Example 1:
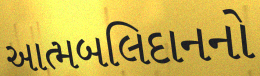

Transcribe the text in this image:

આત્મબલિદાનનો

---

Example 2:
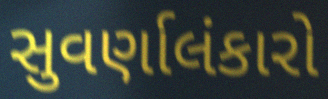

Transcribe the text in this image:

સુવર્ણાલંકારો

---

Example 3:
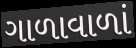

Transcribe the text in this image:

ગાળાવાળાં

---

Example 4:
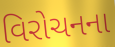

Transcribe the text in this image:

વિરોચનના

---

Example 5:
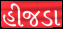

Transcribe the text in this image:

હીજડા